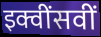
इक्वींसवीं